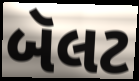
બૅલટ